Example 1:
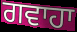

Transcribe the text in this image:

ਗਵਾਹਾ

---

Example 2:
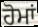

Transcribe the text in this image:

ਹੋਮਾਂ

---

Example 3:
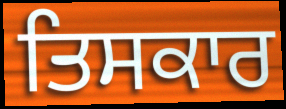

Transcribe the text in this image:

ਤਿਸਕਾਰ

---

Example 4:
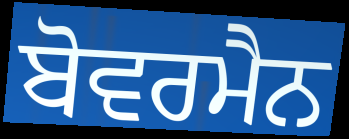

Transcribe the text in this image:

ਬੋਵਰਮੈਨ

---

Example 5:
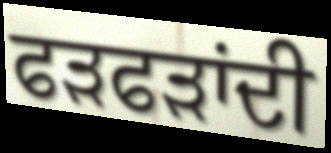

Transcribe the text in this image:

ਫੜਫੜਾਂਦੀ